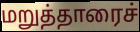
மறுத்தாரைச்